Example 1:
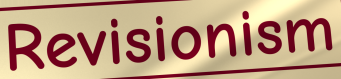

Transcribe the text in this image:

Revisionism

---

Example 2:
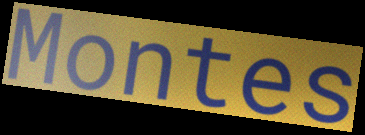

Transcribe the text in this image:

Montes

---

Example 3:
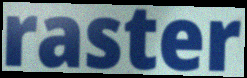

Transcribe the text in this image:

raster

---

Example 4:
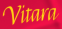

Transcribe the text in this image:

Vitara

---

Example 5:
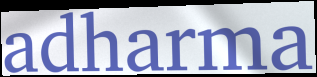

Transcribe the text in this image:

adharma